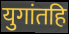
युगांतहि